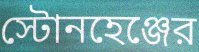
স্টোনহেঞ্জের